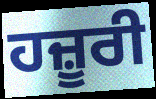
ਹਜ਼ੂਰੀ